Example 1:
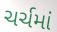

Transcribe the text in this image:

ચર્ચમાં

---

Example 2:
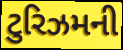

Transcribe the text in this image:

ટુરિઝમની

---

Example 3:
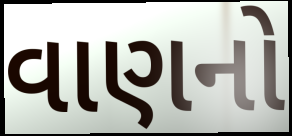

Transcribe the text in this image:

વાણનો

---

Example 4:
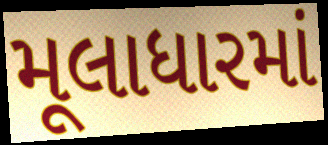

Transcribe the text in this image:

મૂલાધારમાં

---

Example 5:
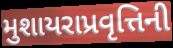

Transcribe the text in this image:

મુશાયરાપ્રવૃત્તિની